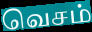
வெசம்